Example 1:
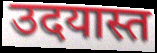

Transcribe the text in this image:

उदयास्त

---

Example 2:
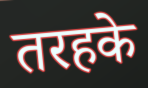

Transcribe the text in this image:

तरहके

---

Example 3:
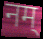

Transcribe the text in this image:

नम्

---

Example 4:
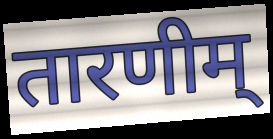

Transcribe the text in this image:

तारणीम्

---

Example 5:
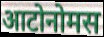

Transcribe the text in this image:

आटोनोमस